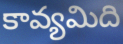
కావ్యమిది